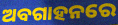
ଅବଗାହନରେ